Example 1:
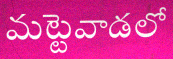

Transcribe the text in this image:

మట్టెవాడలో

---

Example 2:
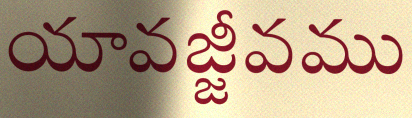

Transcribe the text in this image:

యావజ్జీవము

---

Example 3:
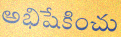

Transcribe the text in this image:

అభిషేకించు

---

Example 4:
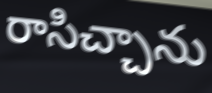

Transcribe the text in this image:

రాసిచ్చాను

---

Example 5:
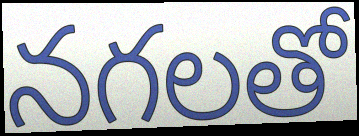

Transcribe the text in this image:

నగలతో